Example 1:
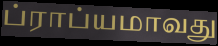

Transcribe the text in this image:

ப்ராப்யமாவது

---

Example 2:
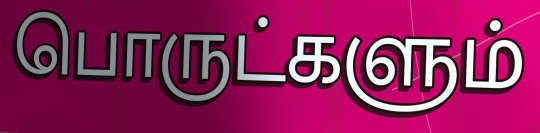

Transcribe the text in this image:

பொருட்களும்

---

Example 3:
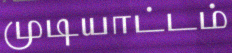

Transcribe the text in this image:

முடியாட்டம்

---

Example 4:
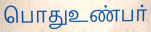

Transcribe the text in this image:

பொதுஉண்பர்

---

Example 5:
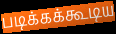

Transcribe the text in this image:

படிக்கக்கூடிய